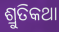
ଶ୍ରୁତିକଥା